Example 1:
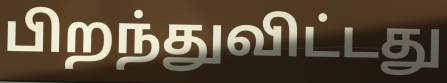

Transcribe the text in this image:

பிறந்துவிட்டது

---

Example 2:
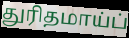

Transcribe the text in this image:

துரிதமாய்ப்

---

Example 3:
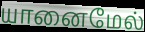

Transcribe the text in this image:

யானைமேல்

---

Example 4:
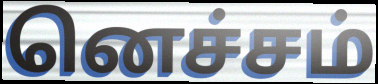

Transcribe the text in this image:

னெச்சம்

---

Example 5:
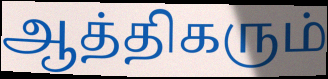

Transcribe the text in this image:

ஆத்திகரும்